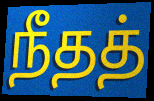
நீதத்